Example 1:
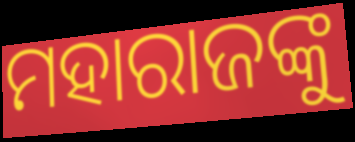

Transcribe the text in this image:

ମହାରାଜଙ୍କୁ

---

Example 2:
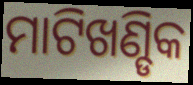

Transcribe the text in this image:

ମାଟିଖଣ୍ଡିକ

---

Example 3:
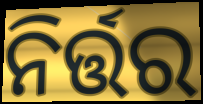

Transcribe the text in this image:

ନିର୍ତ୍ତର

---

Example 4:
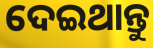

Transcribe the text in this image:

ଦେଇଥାନ୍ତୁ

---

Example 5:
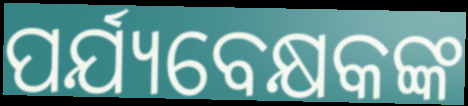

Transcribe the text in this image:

ପର୍ଯ୍ୟବେକ୍ଷକଙ୍କ